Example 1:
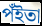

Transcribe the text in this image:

পঁইতা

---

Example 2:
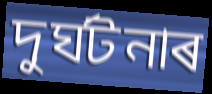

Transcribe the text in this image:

দুৰ্ঘটনাৰ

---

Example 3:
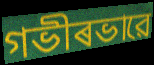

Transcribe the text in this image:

গভীৰভাৱে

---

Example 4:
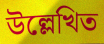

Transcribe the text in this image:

উল্লেখিত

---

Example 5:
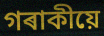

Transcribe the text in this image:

গৰাকীয়ে